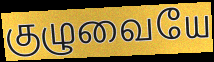
குழுவையே